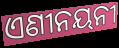
ଏଣୀନୟନୀ